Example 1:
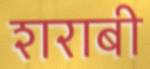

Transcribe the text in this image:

शराबी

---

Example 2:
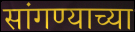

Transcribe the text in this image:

सांगण्याच्या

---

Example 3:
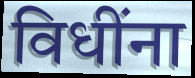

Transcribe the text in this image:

विधींना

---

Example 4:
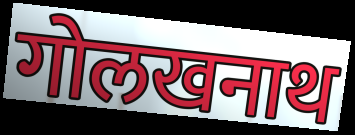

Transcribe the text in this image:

गोलखनाथ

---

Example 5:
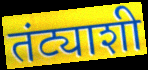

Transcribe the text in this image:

तंट्याशी